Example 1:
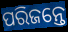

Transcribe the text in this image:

ପରିଜନ୍ତେ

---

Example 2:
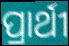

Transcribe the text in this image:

ପ୍ରାର୍ଥୀ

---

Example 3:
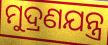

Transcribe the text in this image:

ମୁଦ୍ରଣଯନ୍ତ୍ର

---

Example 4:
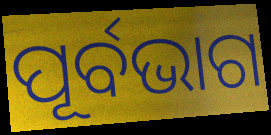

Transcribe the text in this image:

ପୂର୍ବଭାଗ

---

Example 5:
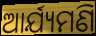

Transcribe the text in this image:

ଆର୍ଯ୍ୟମଣି